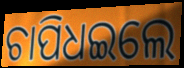
ଚାପିଧଇଲେ